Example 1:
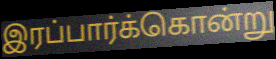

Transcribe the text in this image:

இரப்பார்க்கொன்று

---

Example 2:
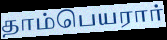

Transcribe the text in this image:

தாம்பெயரார்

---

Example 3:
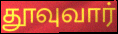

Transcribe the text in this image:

தூவுவார்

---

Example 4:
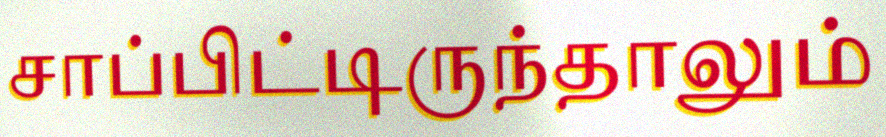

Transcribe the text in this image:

சாப்பிட்டிருந்தாலும்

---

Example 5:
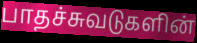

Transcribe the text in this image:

பாதச்சுவடுகளின்